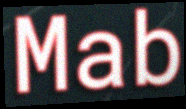
Mab